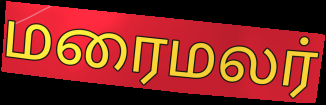
மரைமலர்